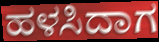
ಹಳಸಿದಾಗ